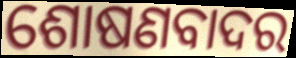
ଶୋଷଣବାଦର